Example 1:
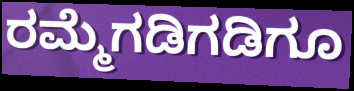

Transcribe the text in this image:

ರಮ್ಮೆಗಡಿಗಡಿಗೂ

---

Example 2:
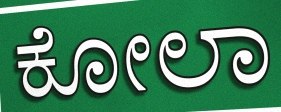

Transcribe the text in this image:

ಕೋಲಾ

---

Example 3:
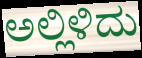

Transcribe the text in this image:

ಅಲ್ಲಿಳಿದು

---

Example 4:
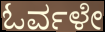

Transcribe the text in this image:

ಓರ್ವಳೇ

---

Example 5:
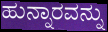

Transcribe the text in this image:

ಹುನ್ನಾರವನ್ನು